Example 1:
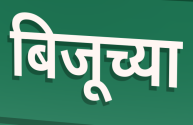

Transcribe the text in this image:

बिजूच्या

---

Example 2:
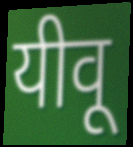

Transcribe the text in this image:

यीवू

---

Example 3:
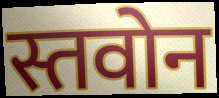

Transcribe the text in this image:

स्तवोन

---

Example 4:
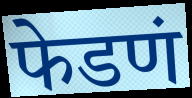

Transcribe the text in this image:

फेडणं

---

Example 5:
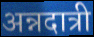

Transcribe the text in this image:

अन्नदात्री